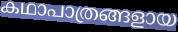
കഥാപാത്രങ്ങളായ